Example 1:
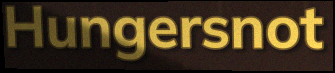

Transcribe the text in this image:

Hungersnot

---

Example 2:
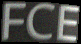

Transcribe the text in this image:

FCE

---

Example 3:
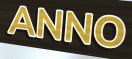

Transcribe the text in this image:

ANNO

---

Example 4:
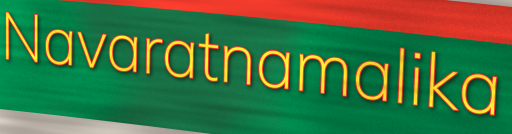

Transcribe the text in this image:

Navaratnamalika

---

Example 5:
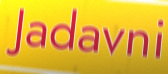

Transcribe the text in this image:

Jadavni